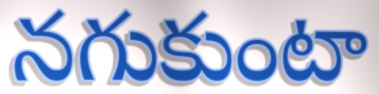
నగుకుంటా